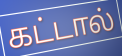
கட்டால்